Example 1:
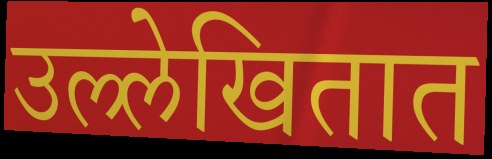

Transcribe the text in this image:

उल्लेखितात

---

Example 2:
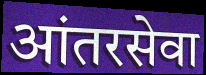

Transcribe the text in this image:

आंतरसेवा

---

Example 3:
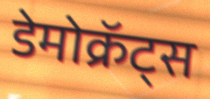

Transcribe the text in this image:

डेमोक्रॅट्स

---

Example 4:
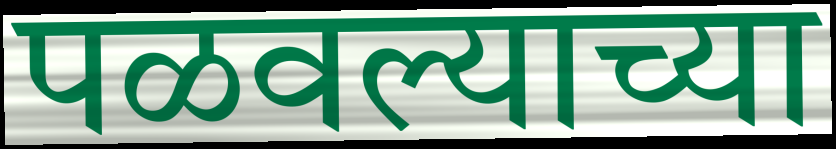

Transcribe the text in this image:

पळवल्याच्या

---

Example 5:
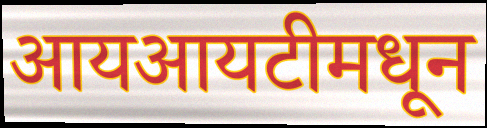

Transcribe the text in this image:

आयआयटीमधून